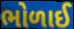
ભોળાઈ